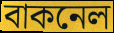
বাকনেল